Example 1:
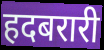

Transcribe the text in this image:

हदबरारी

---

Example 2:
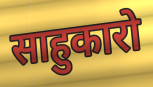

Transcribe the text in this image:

साहुकारो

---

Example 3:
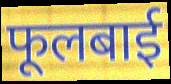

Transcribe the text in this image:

फूलबाई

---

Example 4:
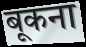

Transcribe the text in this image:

बूकना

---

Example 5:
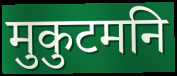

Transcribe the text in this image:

मुकुटमनि